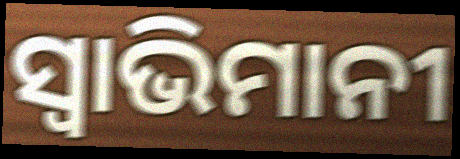
ସ୍ବାଭିମାନୀ